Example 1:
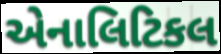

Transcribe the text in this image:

એનાલિટિકલ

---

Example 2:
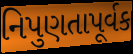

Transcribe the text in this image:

નિપુણતાપૂર્વક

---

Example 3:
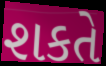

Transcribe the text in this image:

શકતે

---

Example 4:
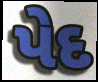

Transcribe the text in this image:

પેદ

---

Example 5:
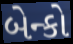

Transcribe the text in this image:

બેન્કો